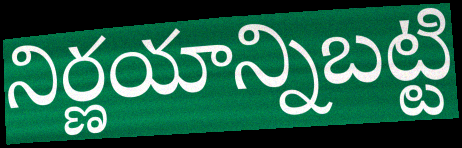
నిర్ణయాన్నిబట్టి